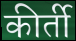
कीर्ती